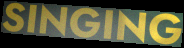
SINGING